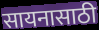
सायनासाठी